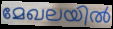
മേഖലയിൽ